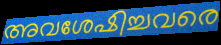
അവശേഷിച്ചവരെ